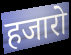
हजारो